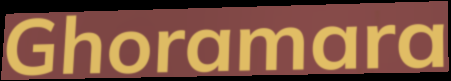
Ghoramara